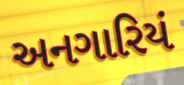
અનગારિયં